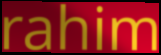
rahim